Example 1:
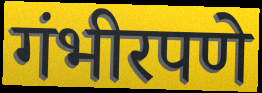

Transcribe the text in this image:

गंभीरपणे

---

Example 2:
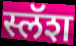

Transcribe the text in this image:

स्लॅश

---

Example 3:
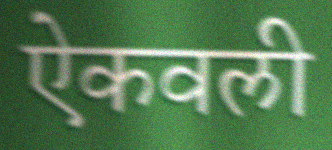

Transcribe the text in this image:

ऐकवली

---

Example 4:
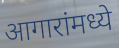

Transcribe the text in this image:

आगारांमध्ये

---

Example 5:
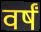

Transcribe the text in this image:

वर्षँ